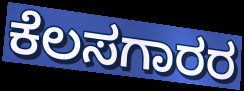
ಕೆಲಸಗಾರರ